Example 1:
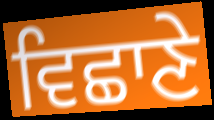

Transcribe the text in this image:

ਵਿਛਾਣੇ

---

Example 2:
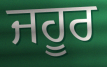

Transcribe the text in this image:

ਜਹੂਰ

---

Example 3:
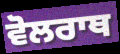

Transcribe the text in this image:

ਵੋਲਰਾਥ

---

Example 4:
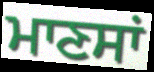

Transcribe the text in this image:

ਮਾਣਸਾਂ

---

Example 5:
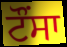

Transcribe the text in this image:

ਟੌਂਸਾ